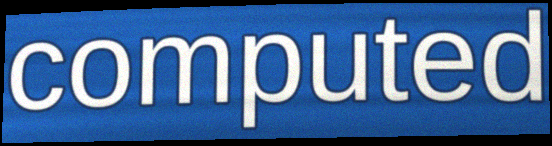
computed